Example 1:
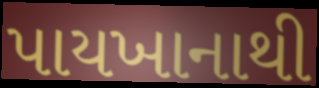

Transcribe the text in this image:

પાયખાનાથી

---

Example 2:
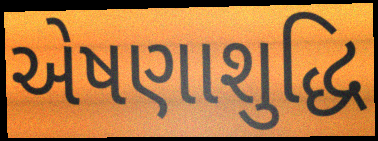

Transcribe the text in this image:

એષણાશુદ્ધિ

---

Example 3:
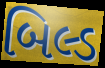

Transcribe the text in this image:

બિલ્ડ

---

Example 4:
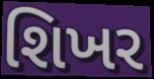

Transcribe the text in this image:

શિખર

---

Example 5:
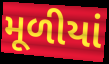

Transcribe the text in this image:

મૂળીયાં